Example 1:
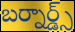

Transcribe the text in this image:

బర్నార్డ్స్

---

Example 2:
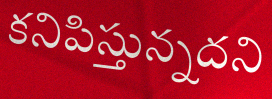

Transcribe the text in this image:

కనిపిస్తున్నదని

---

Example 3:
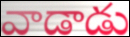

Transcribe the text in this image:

వాడాడు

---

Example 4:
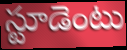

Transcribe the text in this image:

స్టూడెంటు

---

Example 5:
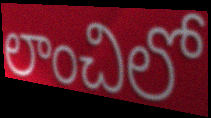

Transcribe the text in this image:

లాంచిలో